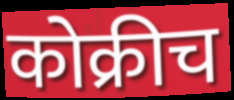
कोक्रीच